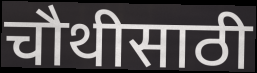
चौथीसाठी